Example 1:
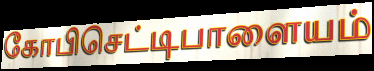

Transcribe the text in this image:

கோபிசெட்டிபாளையம்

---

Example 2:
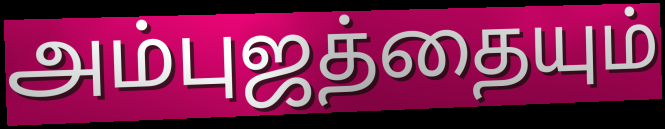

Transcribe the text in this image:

அம்புஜத்தையும்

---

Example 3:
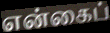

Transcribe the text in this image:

என்கைப்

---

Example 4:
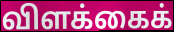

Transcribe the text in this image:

விளக்கைக்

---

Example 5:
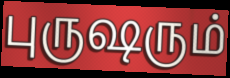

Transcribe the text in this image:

புருஷரும்